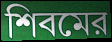
শিবমের